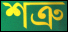
শত্রু